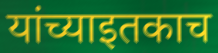
यांच्याइतकाच